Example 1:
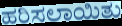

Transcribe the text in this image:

ಹರಿಸಲಾಯಿತು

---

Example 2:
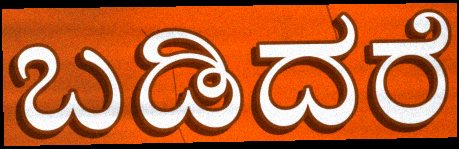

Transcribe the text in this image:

ಬಡಿದರೆ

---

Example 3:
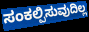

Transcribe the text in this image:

ಸಂಕಲ್ಪಿಸುವುದಿಲ್ಲ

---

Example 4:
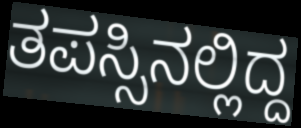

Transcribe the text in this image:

ತಪಸ್ಸಿನಲ್ಲಿದ್ದ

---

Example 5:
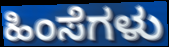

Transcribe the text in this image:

ಹಿಂಸೆಗಳು